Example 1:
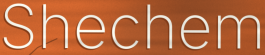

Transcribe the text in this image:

Shechem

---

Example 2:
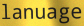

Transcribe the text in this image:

lanuage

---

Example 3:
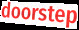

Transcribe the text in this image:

doorstep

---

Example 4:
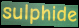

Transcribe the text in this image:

sulphide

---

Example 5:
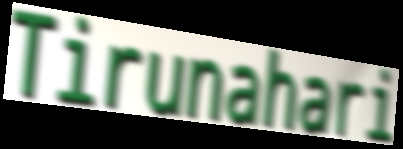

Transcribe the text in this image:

Tirunahari